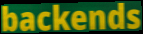
backends